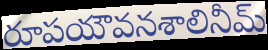
రూపయౌవనశాలినీమ్